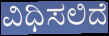
ವಿಧಿಸಲಿದೆ